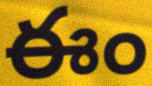
ఈం